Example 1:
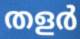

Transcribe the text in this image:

തളർ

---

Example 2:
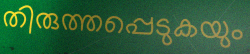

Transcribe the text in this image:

തിരുത്തപ്പെടുകയും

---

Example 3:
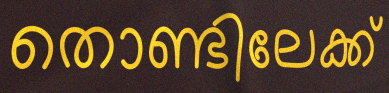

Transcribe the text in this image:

തൊണ്ടിലേക്ക്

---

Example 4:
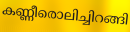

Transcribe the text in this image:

കണ്ണീരൊലിച്ചിറങ്ങി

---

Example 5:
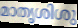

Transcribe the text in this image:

മാതൃശിശു